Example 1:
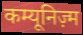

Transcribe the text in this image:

कम्यूनिज़्म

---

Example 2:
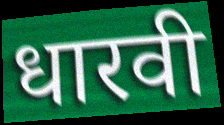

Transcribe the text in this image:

धारवी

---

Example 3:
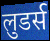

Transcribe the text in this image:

लुडर्स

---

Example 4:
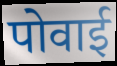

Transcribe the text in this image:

पोवाई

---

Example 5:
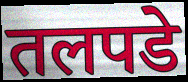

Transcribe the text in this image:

तलपडे